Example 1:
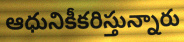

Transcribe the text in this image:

ఆధునికీకరిస్తున్నారు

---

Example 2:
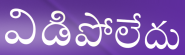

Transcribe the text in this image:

విడిపోలేదు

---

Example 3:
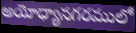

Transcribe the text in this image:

అయోధ్యానగరములో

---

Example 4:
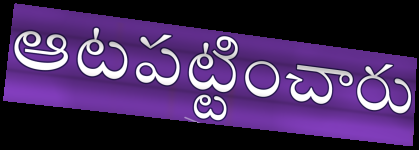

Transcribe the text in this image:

ఆటపట్టించారు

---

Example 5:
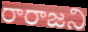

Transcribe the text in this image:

రారాజని